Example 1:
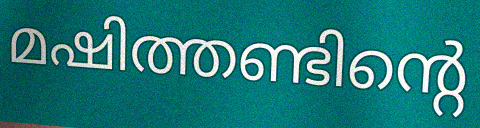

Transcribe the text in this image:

മഷിത്തണ്ടിന്റെ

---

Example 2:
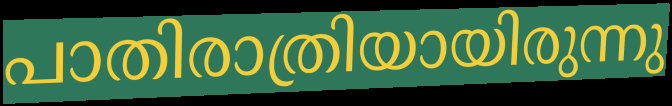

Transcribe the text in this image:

പാതിരാത്രിയായിരുന്നു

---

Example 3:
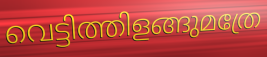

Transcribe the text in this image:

വെട്ടിത്തിളങ്ങുമത്രേ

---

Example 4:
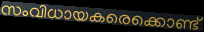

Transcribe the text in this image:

സംവിധായകരെക്കൊണ്ട്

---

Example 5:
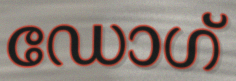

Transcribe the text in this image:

ഡോഗ്